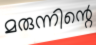
മരുന്നിന്റെ